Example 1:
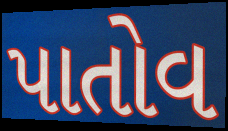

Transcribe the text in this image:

પાતોવ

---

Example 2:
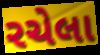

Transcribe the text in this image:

રચેલા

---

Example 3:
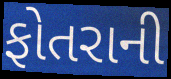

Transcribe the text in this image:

ફોતરાની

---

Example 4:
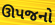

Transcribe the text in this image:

ઊપજનો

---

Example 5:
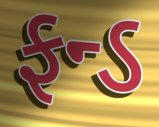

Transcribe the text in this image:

ફન્ડ